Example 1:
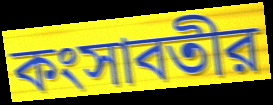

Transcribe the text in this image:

কংসাবতীর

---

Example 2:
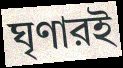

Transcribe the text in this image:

ঘৃণারই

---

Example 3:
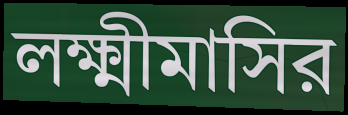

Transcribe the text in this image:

লক্ষ্মীমাসির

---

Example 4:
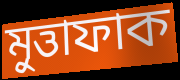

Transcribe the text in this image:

মুত্তাফাক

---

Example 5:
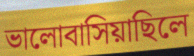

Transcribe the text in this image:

ভালোবাসিয়াছিলে